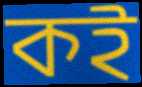
কই